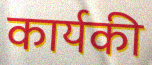
कार्यकी